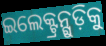
ଇଲେକ୍ଟ୍ରନ୍ଗୁଡ଼ିକୁ